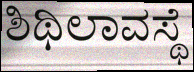
ಶಿಥಿಲಾವಸ್ಥೆ